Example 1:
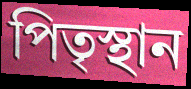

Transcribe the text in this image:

পিতৃস্থান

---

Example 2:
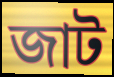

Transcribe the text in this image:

জাট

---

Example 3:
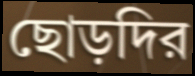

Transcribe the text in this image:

ছোড়দির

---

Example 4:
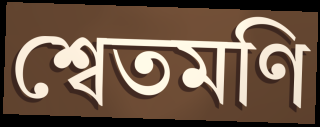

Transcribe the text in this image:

শ্বেতমণি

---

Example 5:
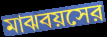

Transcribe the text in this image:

মাঝবয়সের